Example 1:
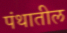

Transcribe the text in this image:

पंथातील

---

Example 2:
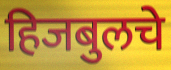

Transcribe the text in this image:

हिजबुलचे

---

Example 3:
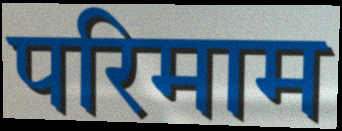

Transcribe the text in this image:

परिमाम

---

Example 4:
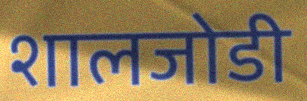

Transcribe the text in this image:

शालजोडी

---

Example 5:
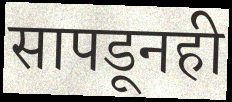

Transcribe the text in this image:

सापडूनही